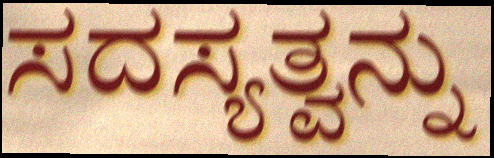
ಸದಸ್ಯತ್ವನ್ನು